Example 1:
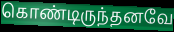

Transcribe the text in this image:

கொண்டிருந்தனவே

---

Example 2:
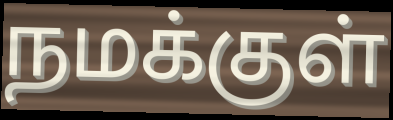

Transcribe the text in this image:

நமக்குள்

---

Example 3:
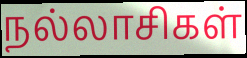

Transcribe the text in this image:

நல்லாசிகள்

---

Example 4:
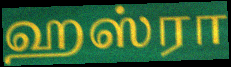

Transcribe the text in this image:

ஹஸ்ரா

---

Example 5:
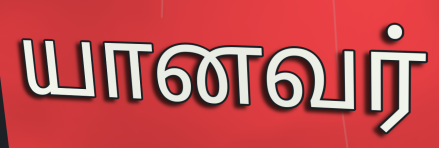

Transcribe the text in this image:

யானவர்